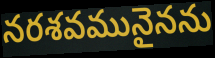
నరశవమునైనను